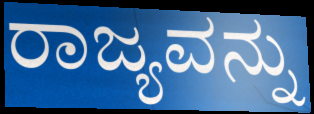
ರಾಜ್ಯವನ್ನು